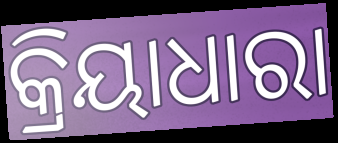
କ୍ରିୟାଧାରା